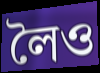
লৈও